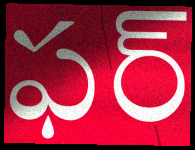
ఫర్